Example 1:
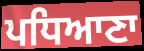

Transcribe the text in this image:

ਪਧਿਆਣਾ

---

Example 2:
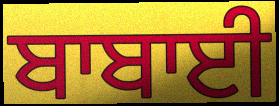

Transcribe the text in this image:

ਬਾਬਾਈ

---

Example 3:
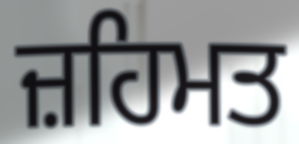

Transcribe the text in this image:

ਜ਼ਹਿਮਤ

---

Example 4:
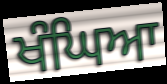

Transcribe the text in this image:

ਖੰਘਿਆ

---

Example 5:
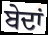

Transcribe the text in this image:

ਬੇਦਾਂ